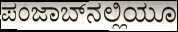
ಪಂಜಾಬ್‌ನಲ್ಲಿಯೂ